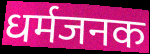
धर्मजनक